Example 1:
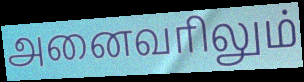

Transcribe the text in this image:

அனைவரிலும்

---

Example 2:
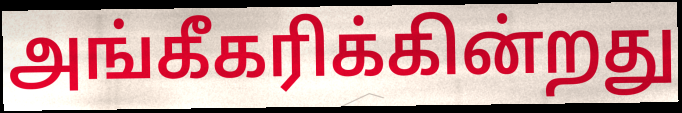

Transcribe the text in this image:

அங்கீகரிக்கின்றது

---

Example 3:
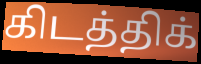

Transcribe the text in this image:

கிடத்திக்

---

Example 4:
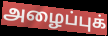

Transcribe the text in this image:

அழைப்புக்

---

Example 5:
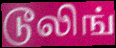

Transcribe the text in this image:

டூலிங்